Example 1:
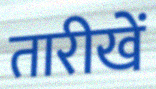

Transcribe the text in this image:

तारीखें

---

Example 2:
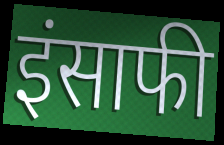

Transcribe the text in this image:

इंसाफी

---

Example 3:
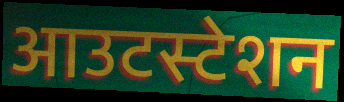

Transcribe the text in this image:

आउटस्टेशन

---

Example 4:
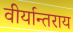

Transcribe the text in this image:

वीर्यान्तराय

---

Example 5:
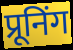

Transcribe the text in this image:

प्रूनिंग